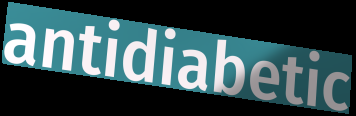
antidiabetic